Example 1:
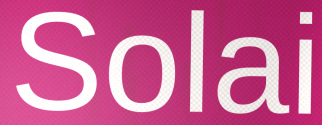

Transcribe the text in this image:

Solai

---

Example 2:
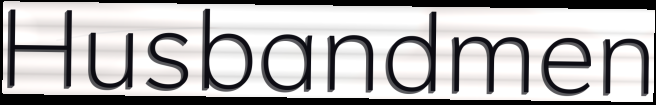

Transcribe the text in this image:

Husbandmen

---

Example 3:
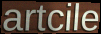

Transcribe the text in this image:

artcile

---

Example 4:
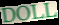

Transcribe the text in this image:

DOLL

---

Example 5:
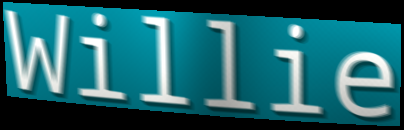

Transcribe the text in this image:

Willie